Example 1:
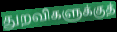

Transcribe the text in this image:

துறவிகளுக்குத்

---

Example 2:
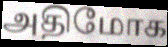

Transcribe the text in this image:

அதிமோக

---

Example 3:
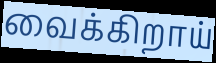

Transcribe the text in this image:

வைக்கிறாய்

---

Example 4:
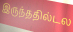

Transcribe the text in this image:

இருந்ததில்டல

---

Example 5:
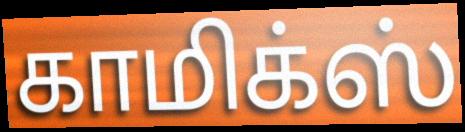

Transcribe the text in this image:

காமிக்ஸ்